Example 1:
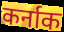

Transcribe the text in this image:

कर्नाक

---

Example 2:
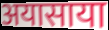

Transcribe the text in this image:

अयासाया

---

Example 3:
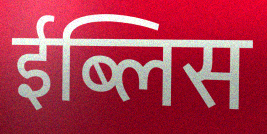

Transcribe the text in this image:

ईब्लिस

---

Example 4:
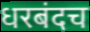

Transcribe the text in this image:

धरबंदच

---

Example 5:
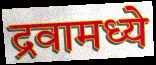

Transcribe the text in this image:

द्रवामध्ये